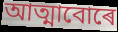
আত্মাবোৰে